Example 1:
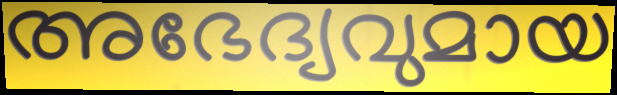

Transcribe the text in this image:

അഭേദ്യവുമായ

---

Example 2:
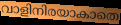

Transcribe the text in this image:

വാളിനിരയാകാതെ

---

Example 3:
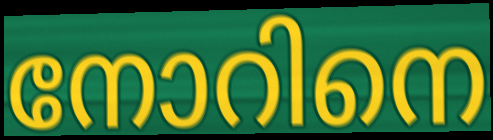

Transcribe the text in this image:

നോറിനെ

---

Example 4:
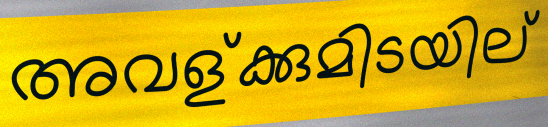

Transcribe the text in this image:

അവള്ക്കുമിടയില്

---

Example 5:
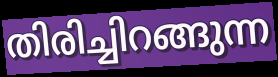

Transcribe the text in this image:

തിരിച്ചിറങ്ങുന്ന